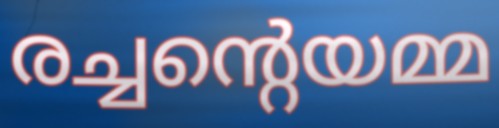
രച്ചന്റെയമ്മ